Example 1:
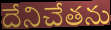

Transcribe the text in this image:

దేనిచేతను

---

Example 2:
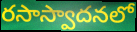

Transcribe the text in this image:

రసాస్వాదనలో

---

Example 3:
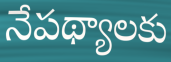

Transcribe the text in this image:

నేపథ్యాలకు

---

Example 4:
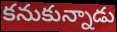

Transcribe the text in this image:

కనుకున్నాడు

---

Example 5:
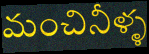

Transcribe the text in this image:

మంచినీళ్ళ